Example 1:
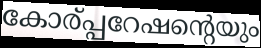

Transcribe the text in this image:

കോര്പ്പറേഷന്റെയും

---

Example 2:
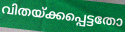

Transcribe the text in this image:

വിതയ്ക്കപ്പെട്ടതോ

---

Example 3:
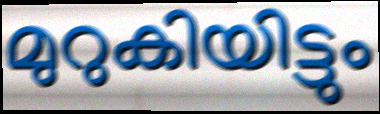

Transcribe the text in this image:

മുറുകിയിട്ടും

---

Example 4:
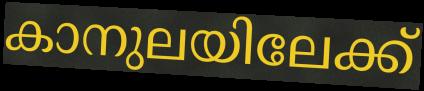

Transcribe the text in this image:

കാനുലയിലേക്ക്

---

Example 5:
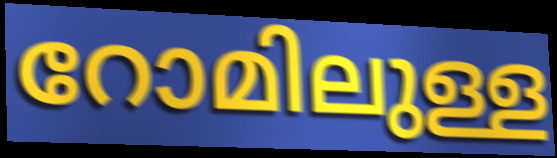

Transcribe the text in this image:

റോമിലുള്ള